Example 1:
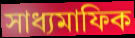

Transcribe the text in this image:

সাধ্যমাফিক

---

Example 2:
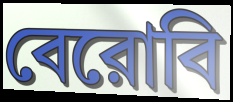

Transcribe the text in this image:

বেরোবি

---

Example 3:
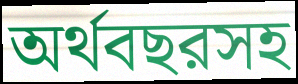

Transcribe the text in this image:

অর্থবছরসহ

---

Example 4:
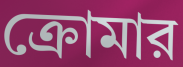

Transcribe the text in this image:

ক্রোমার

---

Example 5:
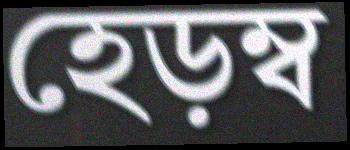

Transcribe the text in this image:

হেড়ম্ব